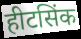
हीटसिंक